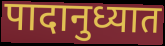
पादानुध्यात